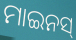
ମାଇନସ୍